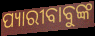
ପ୍ୟାରୀବାବୁଙ୍କ